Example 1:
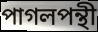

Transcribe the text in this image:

পাগলপন্থী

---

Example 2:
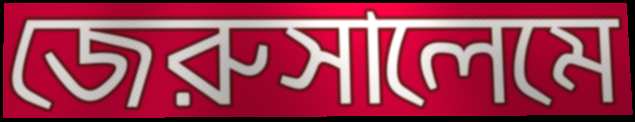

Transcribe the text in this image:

জেরুসালেমে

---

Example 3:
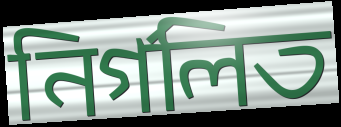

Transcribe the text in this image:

নির্গলিত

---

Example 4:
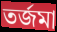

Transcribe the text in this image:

তর্জমা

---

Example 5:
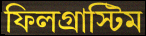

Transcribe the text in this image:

ফিলগ্রাস্টিম